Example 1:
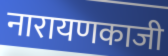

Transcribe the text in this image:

नारायणकाजी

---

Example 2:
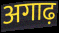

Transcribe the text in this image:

अगाढ़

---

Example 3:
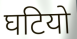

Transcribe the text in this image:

घटियो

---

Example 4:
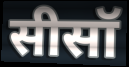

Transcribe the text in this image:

सीसॉ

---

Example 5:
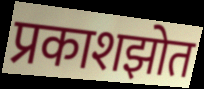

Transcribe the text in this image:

प्रकाशझोत